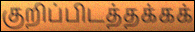
குறிப்பிடத்தக்கக்